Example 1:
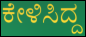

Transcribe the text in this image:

ಕೇಳಿಸಿದ್ದ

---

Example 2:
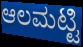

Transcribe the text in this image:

ಆಲಮಟ್ಟಿ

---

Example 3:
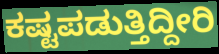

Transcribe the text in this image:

ಕಷ್ಟಪಡುತ್ತಿದ್ದೀರಿ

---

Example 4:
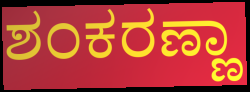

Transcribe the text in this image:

ಶಂಕರಣ್ಣಾ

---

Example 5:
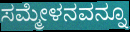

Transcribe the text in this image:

ಸಮ್ಮೇಳನವನ್ನೂ